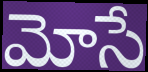
మోసే